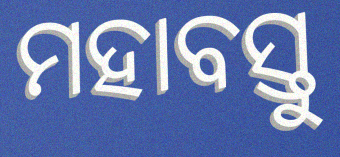
ମହାବସ୍ତୁ